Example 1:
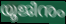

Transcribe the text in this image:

യൂജിനും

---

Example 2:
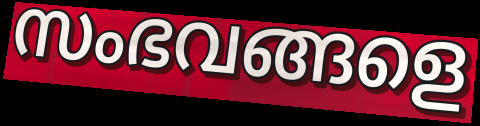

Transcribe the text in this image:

സംഭവങ്ങളെ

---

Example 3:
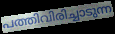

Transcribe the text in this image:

പത്തിവിരിച്ചാടുന്ന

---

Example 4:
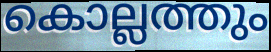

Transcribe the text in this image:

കൊല്ലത്തും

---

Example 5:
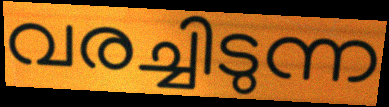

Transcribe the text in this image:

വരച്ചിടുന്ന